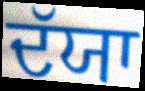
ਦੱਯਾ